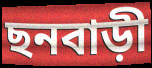
ছনবাড়ী